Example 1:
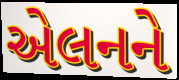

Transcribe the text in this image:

એલનને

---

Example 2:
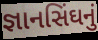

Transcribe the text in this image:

જ્ઞાનસિંઘનું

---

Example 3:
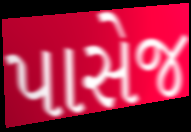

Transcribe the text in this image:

પાસેજ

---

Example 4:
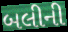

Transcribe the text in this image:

બલીની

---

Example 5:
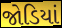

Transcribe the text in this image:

જોડિયાં